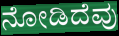
ನೋಡಿದೆವು